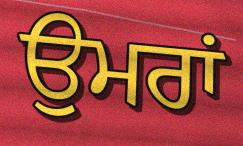
ਉੁਮਰਾਂ